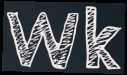
Wk